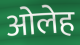
ओलेह